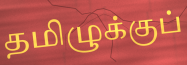
தமிழுக்குப்